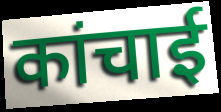
कांचाई